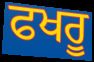
ਫਖਰੂ